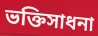
ভক্তিসাধনা